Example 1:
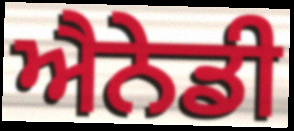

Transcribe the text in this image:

ਐਨੇਡੀ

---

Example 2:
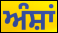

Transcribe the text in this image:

ਅੰਸ਼ਾਂ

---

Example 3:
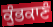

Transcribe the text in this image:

ਕੁੰਭਕਾਣੰ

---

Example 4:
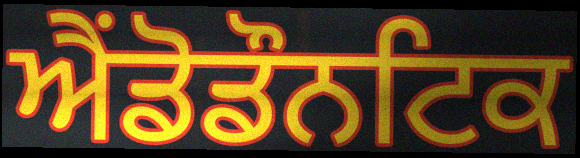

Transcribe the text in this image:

ਐਂਡੋਡੌਨਟਿਕ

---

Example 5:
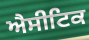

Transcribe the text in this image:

ਐਸੀਟਿਕ